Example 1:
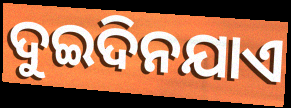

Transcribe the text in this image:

ଦୁଇଦିନଯାଏ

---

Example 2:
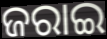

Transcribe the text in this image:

ଜରାଇ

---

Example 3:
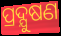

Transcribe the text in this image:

ପ୍ରଦ୍ଯୁଷଣ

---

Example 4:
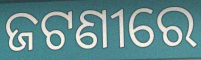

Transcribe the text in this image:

ଜଟଣୀରେ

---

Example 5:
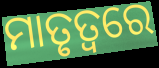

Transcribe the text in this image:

ମାତୃତ୍ୱରେ